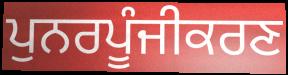
ਪੁਨਰਪੂੰਜੀਕਰਣ